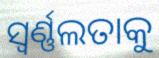
ସ୍ଵର୍ଣ୍ଣଲତାକୁ